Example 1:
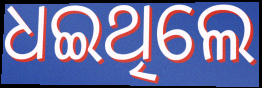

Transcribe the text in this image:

ଧଇଥିଲେ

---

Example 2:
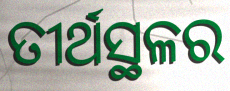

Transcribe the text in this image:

ତୀର୍ଥସ୍ଥଳର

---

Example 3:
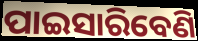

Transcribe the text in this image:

ପାଇସାରିବେଣି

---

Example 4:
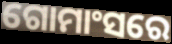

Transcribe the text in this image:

ଗୋମାଂସରେ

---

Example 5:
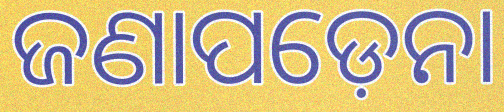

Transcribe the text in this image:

ଜଣାପଡ଼େନା